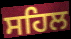
ਸਹਿਲ